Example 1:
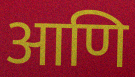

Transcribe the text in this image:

आणि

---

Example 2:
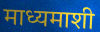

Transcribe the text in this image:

माध्यमाशी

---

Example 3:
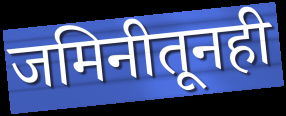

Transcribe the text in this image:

जमिनीतूनही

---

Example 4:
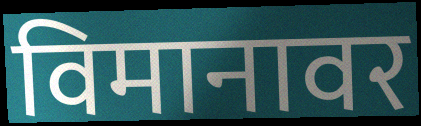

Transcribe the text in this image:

विमानावर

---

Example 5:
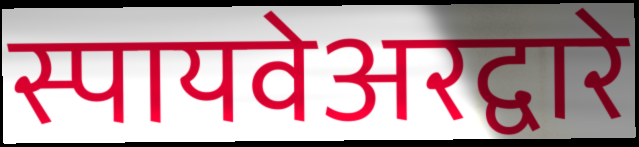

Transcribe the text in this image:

स्पायवेअरद्वारे